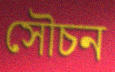
সৌচন